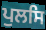
ਪੁਲਸਿ